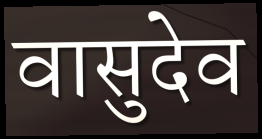
वासुदेव